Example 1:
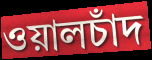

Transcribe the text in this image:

ওয়ালচাঁদ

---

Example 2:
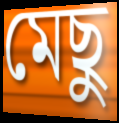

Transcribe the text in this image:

মেছু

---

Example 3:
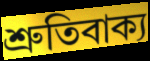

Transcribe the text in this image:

শ্রুতিবাক্য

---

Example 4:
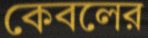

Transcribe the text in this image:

কেবলের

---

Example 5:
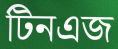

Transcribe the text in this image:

টিনএজ